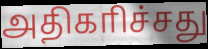
அதிகரிச்சது